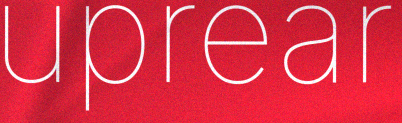
uprear